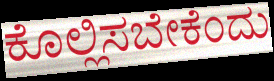
ಕೊಲ್ಲಿಸಬೇಕೆಂದು